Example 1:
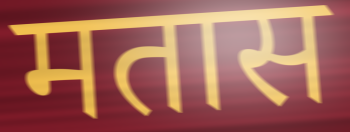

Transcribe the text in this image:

मतास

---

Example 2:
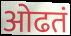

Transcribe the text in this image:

ओढतं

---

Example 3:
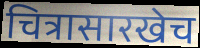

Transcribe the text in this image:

चित्रासारखेच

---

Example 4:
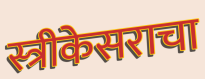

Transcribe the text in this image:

स्त्रीकेसराचा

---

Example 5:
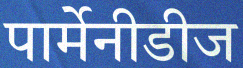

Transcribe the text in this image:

पार्मेनीडीज